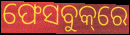
ଫେସବୁକ୍‌ରେ